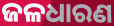
ଜଳଧାରଣ